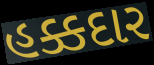
હક્કદાર